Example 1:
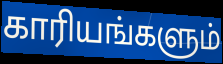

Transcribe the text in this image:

காரியங்களும்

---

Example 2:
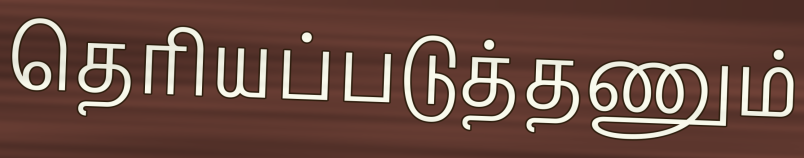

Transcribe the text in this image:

தெரியப்படுத்தணும்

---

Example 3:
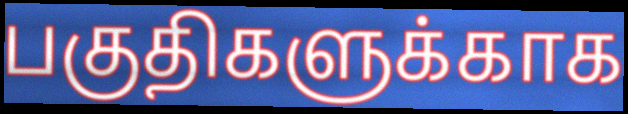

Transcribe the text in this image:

பகுதிகளுக்காக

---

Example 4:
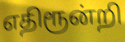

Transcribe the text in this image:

எதிரூன்றி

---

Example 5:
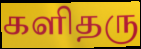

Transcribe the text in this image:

களிதரு